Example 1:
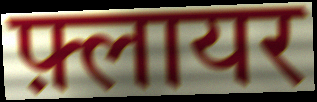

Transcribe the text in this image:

फ़्लायर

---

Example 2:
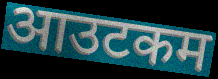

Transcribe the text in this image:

आउटकम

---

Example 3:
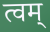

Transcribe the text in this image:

त्वम्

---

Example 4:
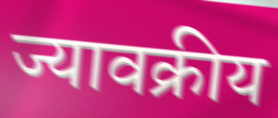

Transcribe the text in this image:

ज्यावक्रीय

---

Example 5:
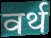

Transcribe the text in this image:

वर्थ